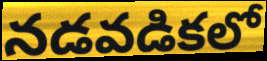
నడవడికలో